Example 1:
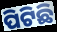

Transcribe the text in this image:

ପିଟିଛି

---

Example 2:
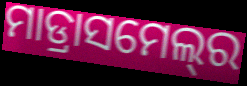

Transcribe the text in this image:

ମାଡ୍ରାସମେଲ୍‍ର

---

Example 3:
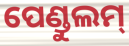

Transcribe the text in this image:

ପେଣ୍ଡୁଲମ୍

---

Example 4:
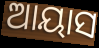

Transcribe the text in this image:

ଆୟାସ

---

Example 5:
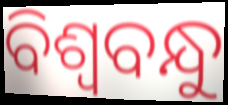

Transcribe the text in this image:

ବିଶ୍ୱବନ୍ଧୁ